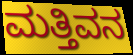
ಮತ್ತಿವನ